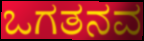
ಒಗತನವ